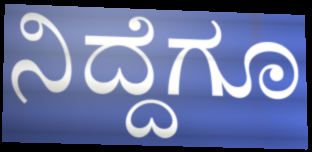
ನಿದ್ದೆಗೂ